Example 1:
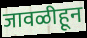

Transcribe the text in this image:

जावळीहून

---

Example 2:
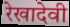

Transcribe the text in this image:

रेखादेवी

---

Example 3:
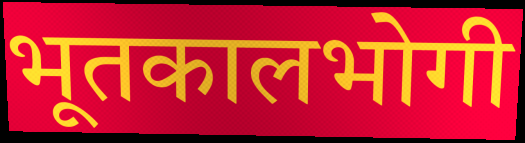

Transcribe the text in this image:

भूतकालभोगी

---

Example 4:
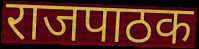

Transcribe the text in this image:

राजपाठक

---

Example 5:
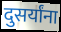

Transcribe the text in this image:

दुसर्यांना